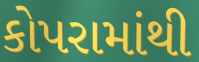
કોપરામાંથી